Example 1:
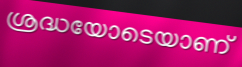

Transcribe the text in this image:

ശ്രദ്ധയോടെയാണ്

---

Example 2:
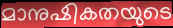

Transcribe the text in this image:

മാനുഷികതയുടെ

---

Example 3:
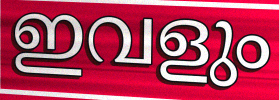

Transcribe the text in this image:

ഇവളും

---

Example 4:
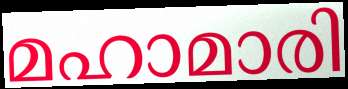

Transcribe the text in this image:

മഹാമാരി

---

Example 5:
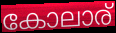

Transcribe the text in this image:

കോലാര്